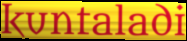
kuntaladi